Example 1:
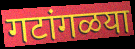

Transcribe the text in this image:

गटांगळया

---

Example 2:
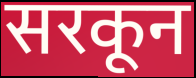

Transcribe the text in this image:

सरकून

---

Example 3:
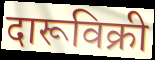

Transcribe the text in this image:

दारूविक्री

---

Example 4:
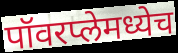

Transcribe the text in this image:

पॉवरप्लेमध्येच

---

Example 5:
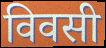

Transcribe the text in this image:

विवसी